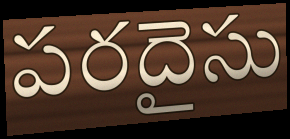
పరదైసు